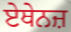
ਏਥੇਨਜ਼